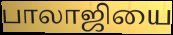
பாலாஜியை